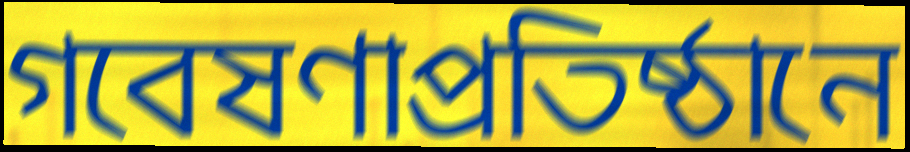
গবেষণাপ্রতিষ্ঠানে